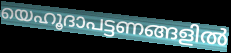
യെഹൂദാപട്ടണങ്ങളിൽ